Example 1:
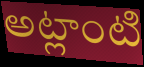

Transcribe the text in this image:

అట్లాంటి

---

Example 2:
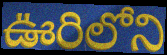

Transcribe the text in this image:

ఊరిలోని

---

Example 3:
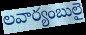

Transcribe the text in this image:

లవార్యంబులై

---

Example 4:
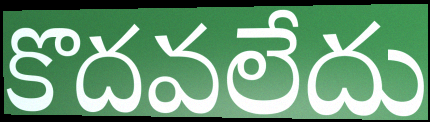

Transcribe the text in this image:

కొదవలేదు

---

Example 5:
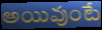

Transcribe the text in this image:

అయివుంటే